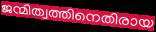
ജന്മിത്വത്തിനെതിരായ